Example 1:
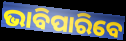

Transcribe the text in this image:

ଭାବିପାରିବେ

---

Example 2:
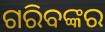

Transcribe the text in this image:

ଗରିବଙ୍କର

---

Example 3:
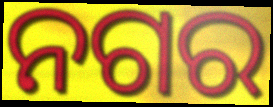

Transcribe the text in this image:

ନଗର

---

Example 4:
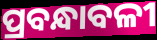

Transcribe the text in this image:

ପ୍ରବନ୍ଧାବଳୀ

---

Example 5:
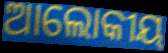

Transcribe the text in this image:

ଆଲୋକୀୟ